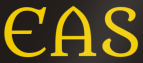
EAS